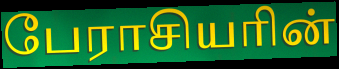
பேராசியரின்